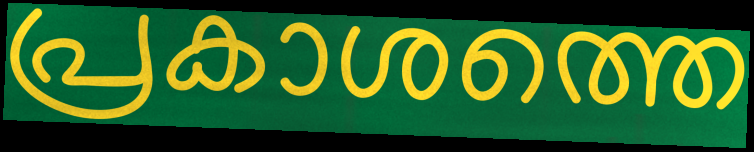
പ്രകാശത്തെ